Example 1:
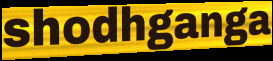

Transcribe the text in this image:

shodhganga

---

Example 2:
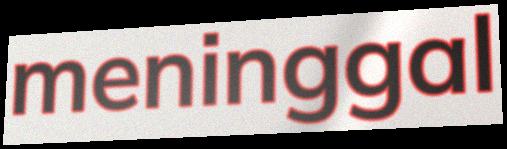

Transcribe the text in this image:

meninggal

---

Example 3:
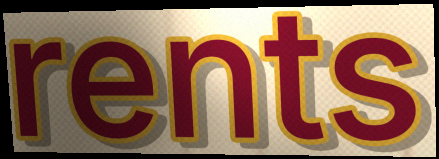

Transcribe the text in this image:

rents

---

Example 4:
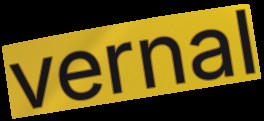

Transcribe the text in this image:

vernal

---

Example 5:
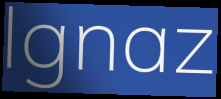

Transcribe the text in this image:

Ignaz